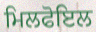
ਮਿਲਫੋਇਲ